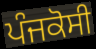
ਪੰਜਕੋਸੀ